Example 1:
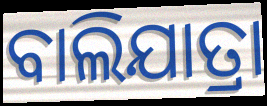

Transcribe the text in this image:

ବାଲିଯାତ୍ରା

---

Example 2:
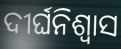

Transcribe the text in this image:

ଦୀର୍ଘନିଶ୍ୱାସ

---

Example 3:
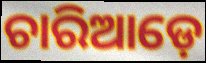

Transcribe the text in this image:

ଚାରିଆଡ଼େ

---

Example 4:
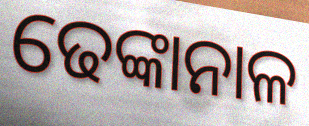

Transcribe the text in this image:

ଢେଙ୍କାନାଳ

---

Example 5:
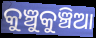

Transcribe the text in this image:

କୁଞ୍ଚୁକୁଞ୍ଚିଆ